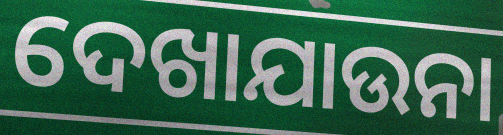
ଦେଖାଯାଉନା